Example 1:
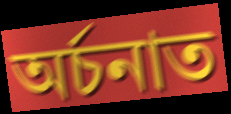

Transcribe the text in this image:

অৰ্চনাত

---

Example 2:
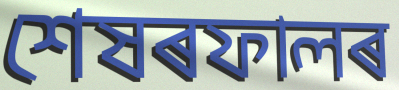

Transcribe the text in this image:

শেষৰফালৰ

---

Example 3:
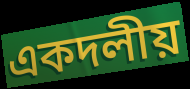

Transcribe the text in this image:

একদলীয়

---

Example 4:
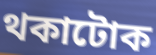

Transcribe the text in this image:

থকাটোক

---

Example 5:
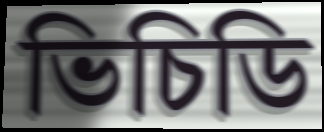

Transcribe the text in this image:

ভিচিডি